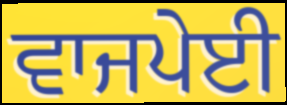
ਵਾਜਪੇਈ